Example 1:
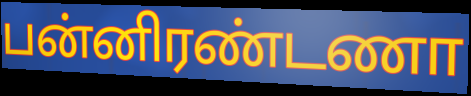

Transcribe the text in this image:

பன்னிரண்டணா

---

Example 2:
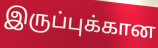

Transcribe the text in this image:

இருப்புக்கான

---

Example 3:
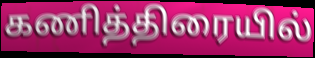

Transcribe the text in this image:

கணித்திரையில்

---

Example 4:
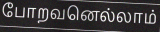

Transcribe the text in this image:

போறவனெல்லாம்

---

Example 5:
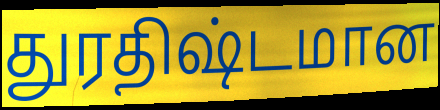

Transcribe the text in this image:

துரதிஷ்டமான